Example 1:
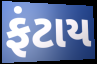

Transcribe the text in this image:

ફંટાય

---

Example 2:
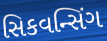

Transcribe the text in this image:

સિકવન્સિંગ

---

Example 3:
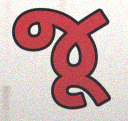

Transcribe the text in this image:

જૂ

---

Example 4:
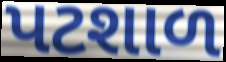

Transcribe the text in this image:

પટશાળ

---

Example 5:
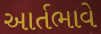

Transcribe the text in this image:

આર્તભાવે